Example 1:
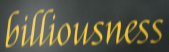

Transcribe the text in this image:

billiousness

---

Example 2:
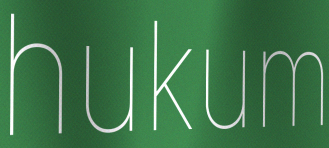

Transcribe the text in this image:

hukum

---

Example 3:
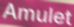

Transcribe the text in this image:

Amulet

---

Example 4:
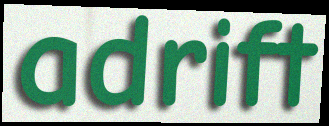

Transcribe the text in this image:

adrift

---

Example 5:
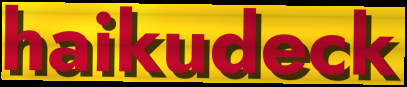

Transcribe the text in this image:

haikudeck